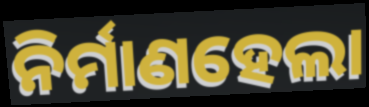
ନିର୍ମାଣହେଲା